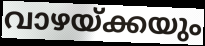
വാഴയ്ക്കയും